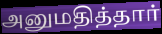
அனுமதித்தார்